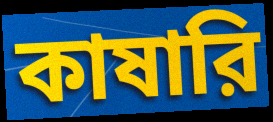
কাষারি